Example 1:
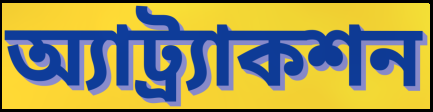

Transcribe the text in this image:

অ্যাট্র্যাকশন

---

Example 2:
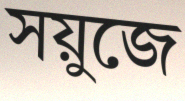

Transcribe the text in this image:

সয়ুজে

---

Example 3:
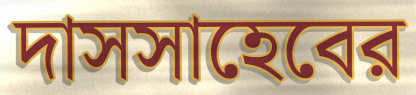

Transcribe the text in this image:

দাসসাহেবের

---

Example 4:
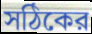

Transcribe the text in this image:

সঠিকের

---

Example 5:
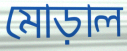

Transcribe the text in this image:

মোড়াল